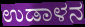
ಉಡಾಳನ